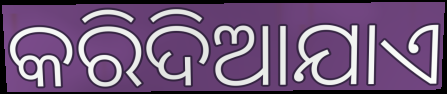
କରିଦିଆଯାଏ